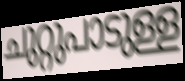
ചുറ്റുപാടുള്ള